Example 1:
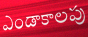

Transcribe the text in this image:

ఎండాకాలపు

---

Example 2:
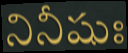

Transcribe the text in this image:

నినీషుః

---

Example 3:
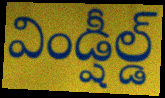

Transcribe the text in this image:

విండ్షీల్డ్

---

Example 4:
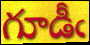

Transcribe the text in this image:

గూడీఁ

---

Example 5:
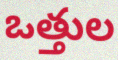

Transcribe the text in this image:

ఒత్తుల